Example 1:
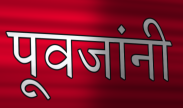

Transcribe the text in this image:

पूवजांनी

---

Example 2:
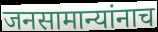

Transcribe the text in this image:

जनसामान्यांनाच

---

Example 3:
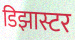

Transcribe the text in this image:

डिझास्टर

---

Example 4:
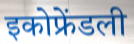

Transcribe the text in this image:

इकोफ्रेंडली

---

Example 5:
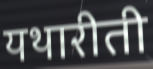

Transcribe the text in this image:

यथारीती